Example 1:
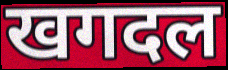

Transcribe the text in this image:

खगदल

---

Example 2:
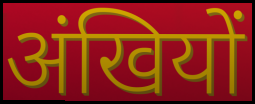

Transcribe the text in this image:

अंखियों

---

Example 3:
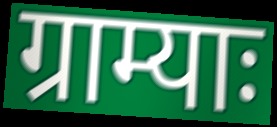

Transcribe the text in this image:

ग्राम्याः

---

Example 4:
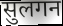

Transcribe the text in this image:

सुलगन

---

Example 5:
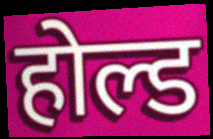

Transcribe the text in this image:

होल्ड